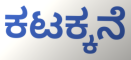
ಕಟಕ್ಕನೆ